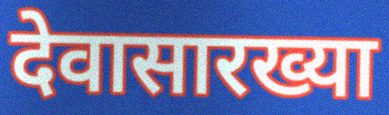
देवासारख्या